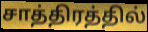
சாத்திரத்தில்